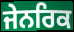
ਜੇਨਰਿਕ